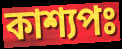
কাশ্যপঃ